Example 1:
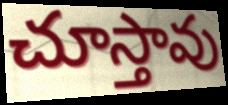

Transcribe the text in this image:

చూస్తావు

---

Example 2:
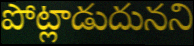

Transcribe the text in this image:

పోట్లాడుదునని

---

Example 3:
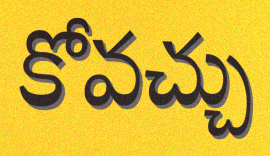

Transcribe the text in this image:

కోవచ్చు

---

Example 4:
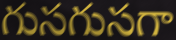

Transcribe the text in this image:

గుసగుసగా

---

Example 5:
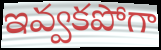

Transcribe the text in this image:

ఇవ్వకపోగా